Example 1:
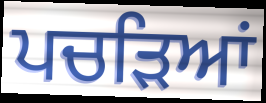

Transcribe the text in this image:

ਪਚੜਿਆਂ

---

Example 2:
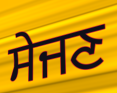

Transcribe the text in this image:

ਸੇਜਣ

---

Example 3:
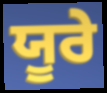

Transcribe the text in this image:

ਯੂਰੇ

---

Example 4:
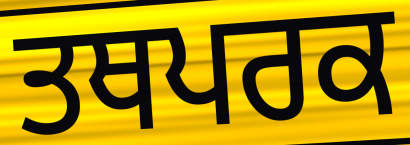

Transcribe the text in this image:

ਤਥਪਰਕ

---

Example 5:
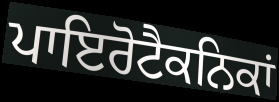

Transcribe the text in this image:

ਪਾਇਰੋਟੈਕਨਿਕਾਂ